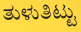
ತುಳುತಿಟ್ಟು